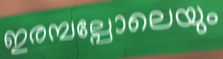
ഇരമ്പല്പോലെയും